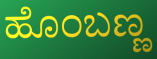
ಹೊಂಬಣ್ಣ